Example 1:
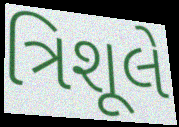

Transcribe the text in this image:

ત્રિશૂલે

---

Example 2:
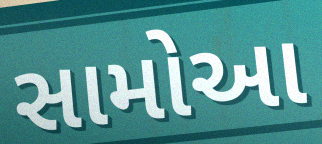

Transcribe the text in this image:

સામોઆ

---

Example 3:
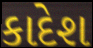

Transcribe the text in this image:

કાદેશ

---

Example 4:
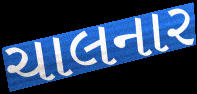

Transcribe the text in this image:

ચાલનાર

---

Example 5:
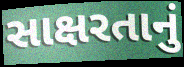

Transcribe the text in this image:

સાક્ષરતાનું